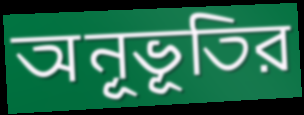
অনূভূতির